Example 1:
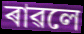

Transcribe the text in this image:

ৰাৱলে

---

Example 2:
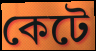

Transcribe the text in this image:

কেটে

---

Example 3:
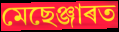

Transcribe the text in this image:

মেছেঞ্জাৰত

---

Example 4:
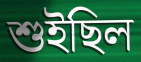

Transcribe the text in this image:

শুইছিল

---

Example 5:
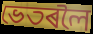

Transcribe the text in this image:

ভেতৰলৈ